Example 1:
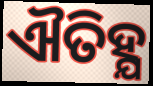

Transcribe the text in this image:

ଐତିହ୍ଯ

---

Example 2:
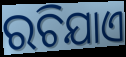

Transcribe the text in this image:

ରଚିଯାଏ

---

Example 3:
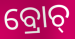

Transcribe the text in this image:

ବ୍ରୋଚ୍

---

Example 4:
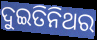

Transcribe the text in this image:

ଦୁଇତିନିଥର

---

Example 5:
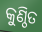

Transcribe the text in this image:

କୁଣ୍ଠିତ